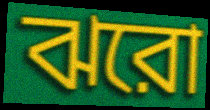
ঝরো